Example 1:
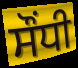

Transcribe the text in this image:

ਸੌਂਧੀ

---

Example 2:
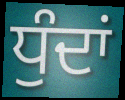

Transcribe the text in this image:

ਧੁੰਦਾਂ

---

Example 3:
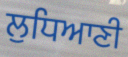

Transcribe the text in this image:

ਲੁਧਿਆਣੀ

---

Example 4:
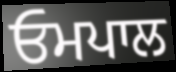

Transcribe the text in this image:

ਓਮਪਾਲ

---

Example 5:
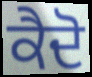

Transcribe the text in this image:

ਕੈਦੋ